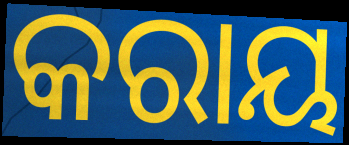
କରାୟ